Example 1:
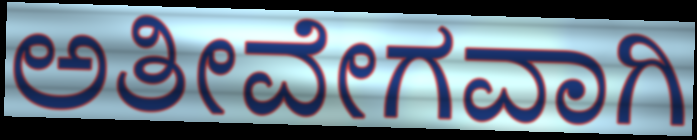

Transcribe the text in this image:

ಅತೀವೇಗವಾಗಿ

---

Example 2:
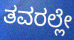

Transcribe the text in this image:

ತವರಲ್ಲೇ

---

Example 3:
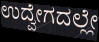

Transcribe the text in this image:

ಉದ್ವೇಗದಲ್ಲೇ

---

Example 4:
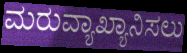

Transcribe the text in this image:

ಮರುವ್ಯಾಖ್ಯಾನಿಸಲು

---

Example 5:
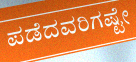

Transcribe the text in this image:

ಪಡೆದವರಿಗಷ್ಟೇ